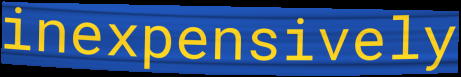
inexpensively